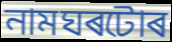
নামঘৰটোৰ